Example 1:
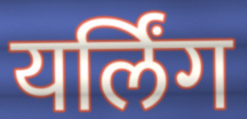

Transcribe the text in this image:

यर्लिंग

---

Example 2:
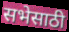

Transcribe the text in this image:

सभेसाठी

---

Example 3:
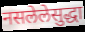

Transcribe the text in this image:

नसलेलेसुद्धा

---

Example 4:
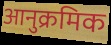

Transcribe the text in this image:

आनुक्रमिक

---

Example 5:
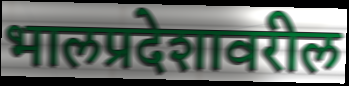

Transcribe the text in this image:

भालप्रदेशावरील